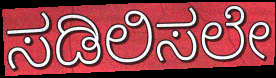
ಸಡಿಲಿಸಲೇ